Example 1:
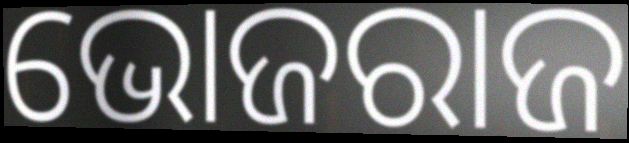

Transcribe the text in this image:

ଭୋଜରାଜ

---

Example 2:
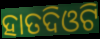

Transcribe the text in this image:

ହାତଦିଓଟି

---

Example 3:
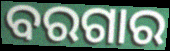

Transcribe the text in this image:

ବରଗାର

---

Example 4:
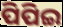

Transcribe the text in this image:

ପିପିଇ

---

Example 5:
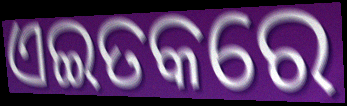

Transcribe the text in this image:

ଏଇତକରେ